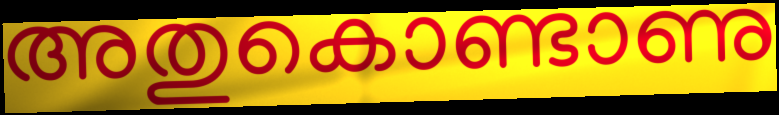
അതുകൊണ്ടാണു